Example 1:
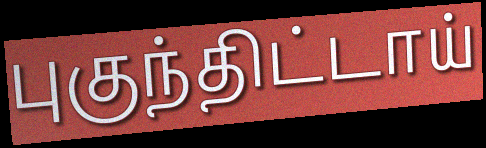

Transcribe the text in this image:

புகுந்திட்டாய்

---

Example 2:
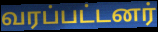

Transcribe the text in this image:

வரப்பட்டனர்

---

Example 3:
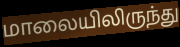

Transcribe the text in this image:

மாலையிலிருந்து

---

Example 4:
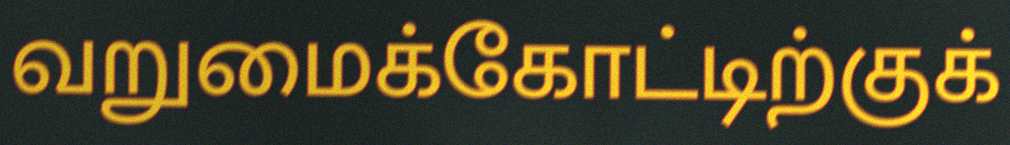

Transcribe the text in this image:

வறுமைக்கோட்டிற்குக்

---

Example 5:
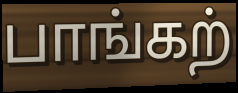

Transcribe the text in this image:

பாங்கற்